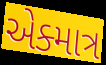
એક્માત્ર